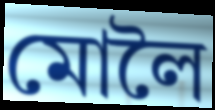
মোলৈ